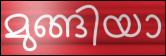
മുങ്ങിയാ